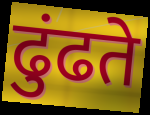
ढुंढते